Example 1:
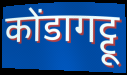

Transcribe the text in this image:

कोंडागट्टू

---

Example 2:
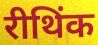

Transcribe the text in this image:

रीथिंक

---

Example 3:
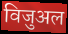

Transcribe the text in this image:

विजुअल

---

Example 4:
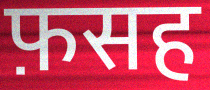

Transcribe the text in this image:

फ़सह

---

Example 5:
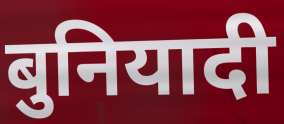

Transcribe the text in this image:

बुनियादी